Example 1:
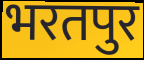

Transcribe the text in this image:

भरतपुर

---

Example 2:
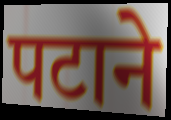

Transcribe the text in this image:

पटाने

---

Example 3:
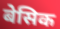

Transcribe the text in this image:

बेसिक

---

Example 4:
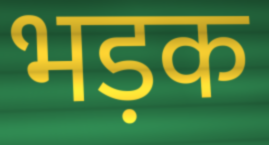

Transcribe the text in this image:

भड़क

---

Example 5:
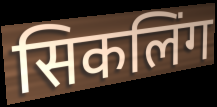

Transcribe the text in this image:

सिकलिंग